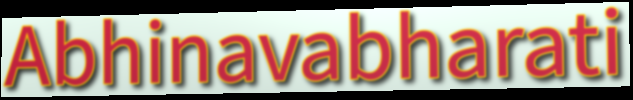
Abhinavabharati